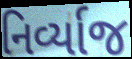
નિર્વ્યાજ